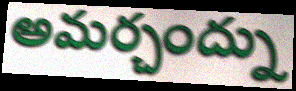
అమర్చంద్ను